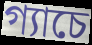
গ্যাচে